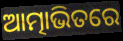
ଆତ୍ମାଭିତରେ